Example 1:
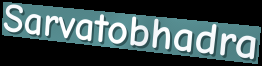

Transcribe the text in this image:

Sarvatobhadra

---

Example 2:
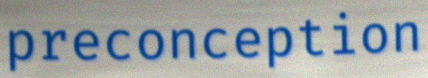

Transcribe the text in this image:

preconception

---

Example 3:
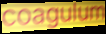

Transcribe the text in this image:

coagulum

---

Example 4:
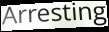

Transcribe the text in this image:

Arresting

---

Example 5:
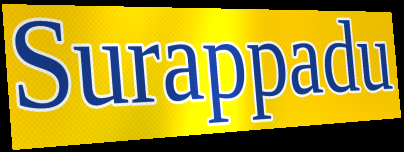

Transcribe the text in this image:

Surappadu